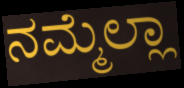
ನಮ್ಮೆಲ್ಲಾ